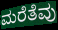
ಮರೆತೆವು